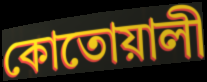
কোতোয়ালী